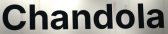
Chandola